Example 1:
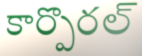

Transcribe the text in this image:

కార్పొరల్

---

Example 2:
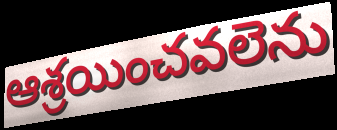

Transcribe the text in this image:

ఆశ్రయించవలెను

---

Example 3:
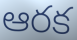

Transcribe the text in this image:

ఆరక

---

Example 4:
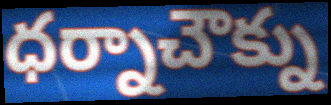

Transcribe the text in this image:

ధర్నాచౌక్ను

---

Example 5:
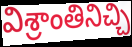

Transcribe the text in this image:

విశ్రాంతినిచ్చి